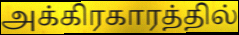
அக்கிரகாரத்தில்